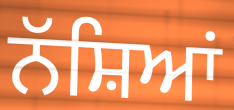
ਨੱਸ਼ਿਆਂ